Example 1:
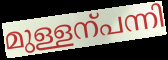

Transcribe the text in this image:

മുള്ളന്പന്നി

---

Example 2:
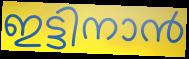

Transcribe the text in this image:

ഇട്ടിനാൻ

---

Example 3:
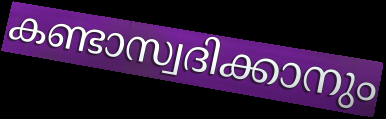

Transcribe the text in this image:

കണ്ടാസ്വദിക്കാനും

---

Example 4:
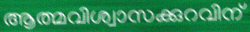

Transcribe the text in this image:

ആത്മവിശ്വാസക്കുറവിന്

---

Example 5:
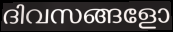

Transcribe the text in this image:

ദിവസങ്ങളോ